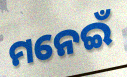
ମନେଇଁ